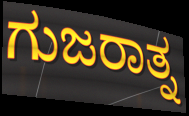
ಗುಜರಾತ್ನ